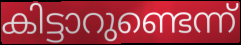
കിട്ടാറുണ്ടെന്ന്